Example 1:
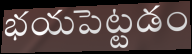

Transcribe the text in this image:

భయపెట్టడం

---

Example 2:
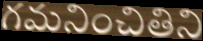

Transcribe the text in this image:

గమనించితిని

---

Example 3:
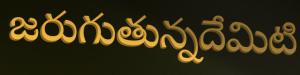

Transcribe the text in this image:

జరుగుతున్నదేమిటి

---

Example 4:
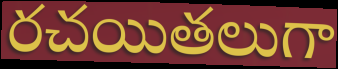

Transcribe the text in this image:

రచయితలుగా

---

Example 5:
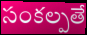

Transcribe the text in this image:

సంకల్పతే